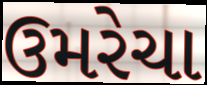
ઉમરેચા